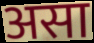
असा